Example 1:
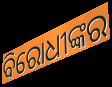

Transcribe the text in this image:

ବିରୋଧୀଙ୍କର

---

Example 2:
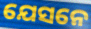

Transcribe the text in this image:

ଯେସନେ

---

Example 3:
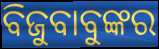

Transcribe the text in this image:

ବିଜୁବାବୁଙ୍କର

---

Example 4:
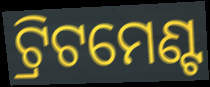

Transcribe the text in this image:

ଟ୍ରିଟମେଣ୍ଟ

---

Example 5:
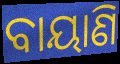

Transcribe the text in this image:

ବାୟାଣି